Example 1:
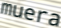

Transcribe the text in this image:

muera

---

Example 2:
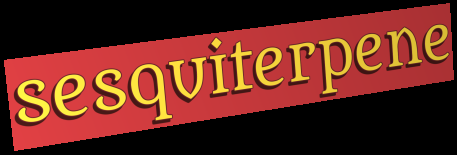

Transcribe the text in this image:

sesquiterpene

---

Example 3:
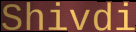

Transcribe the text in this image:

Shivdi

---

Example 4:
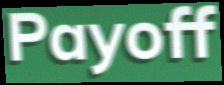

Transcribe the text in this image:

Payoff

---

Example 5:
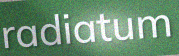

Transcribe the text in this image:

radiatum